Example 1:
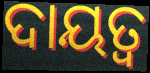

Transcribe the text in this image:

ଦାୟତ୍ବ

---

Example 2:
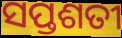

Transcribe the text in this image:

ସପ୍ତଶତୀ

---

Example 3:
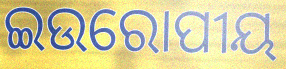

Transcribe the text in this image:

ଇଉରୋପୀୟ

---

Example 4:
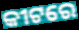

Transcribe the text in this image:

କୀଟରେ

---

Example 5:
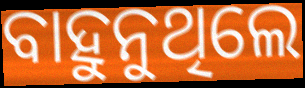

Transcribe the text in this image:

ବାହୁନୁଥିଲେ